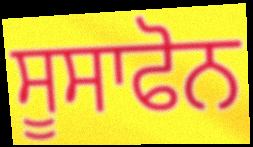
ਸੂਸਾਫੋਨ